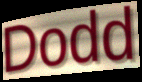
Dodd